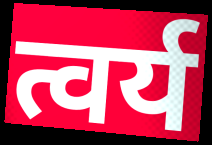
त्वर्य